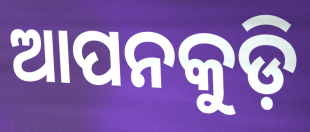
ଆପନକୁଡ଼ି